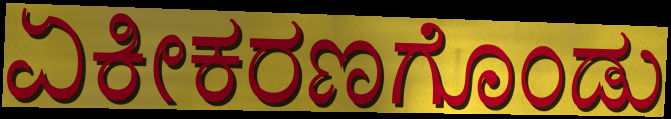
ಏಕೀಕರಣಗೊಂಡು